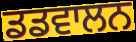
ਡਡਵਾਲਨ